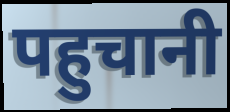
पहुचानी